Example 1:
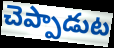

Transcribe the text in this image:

చెప్పాడుట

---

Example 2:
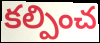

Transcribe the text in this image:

కల్పించ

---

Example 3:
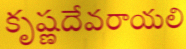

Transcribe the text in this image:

కృష్ణదేవరాయలి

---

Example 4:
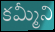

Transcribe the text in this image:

కమ్మీని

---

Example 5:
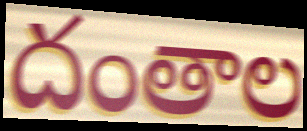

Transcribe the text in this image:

దంతాల